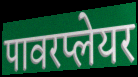
पावरप्लेयर